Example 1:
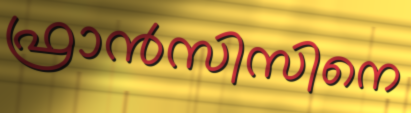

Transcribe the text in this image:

ഫ്രാൻസിസിനെ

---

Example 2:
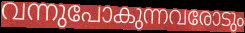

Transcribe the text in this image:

വന്നുപോകുന്നവരോടും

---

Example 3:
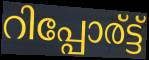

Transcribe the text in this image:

റിപ്പോര്ട്ട്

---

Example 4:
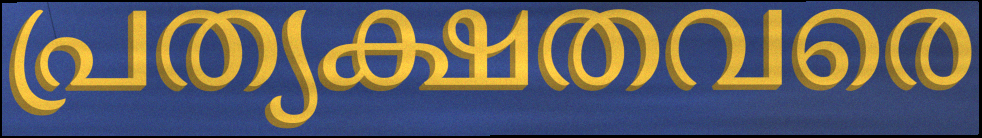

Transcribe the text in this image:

പ്രത്യക്ഷതവരെ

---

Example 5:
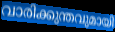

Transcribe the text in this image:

വാരിക്കുന്തവുമായി